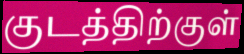
குடத்திற்குள்